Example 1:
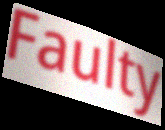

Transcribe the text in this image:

Faulty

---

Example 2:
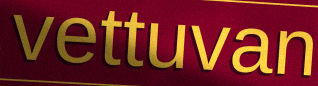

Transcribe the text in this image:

vettuvan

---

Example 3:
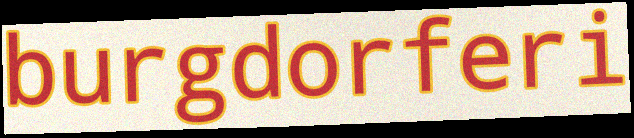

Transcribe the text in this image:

burgdorferi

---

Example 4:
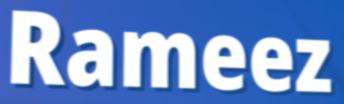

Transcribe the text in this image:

Rameez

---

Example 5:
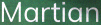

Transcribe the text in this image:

Martian